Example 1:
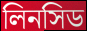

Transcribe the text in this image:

লিনসিড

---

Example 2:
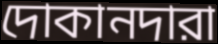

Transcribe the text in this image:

দোকানদারা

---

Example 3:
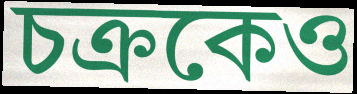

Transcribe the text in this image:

চক্রকেও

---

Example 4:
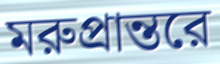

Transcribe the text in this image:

মরুপ্রান্তরে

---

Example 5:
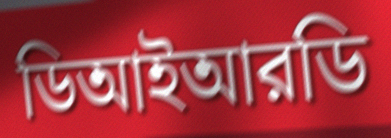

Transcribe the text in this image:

ডিআইআরডি